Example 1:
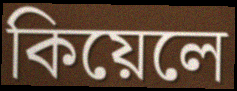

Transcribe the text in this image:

কিয়েলে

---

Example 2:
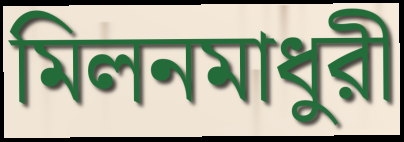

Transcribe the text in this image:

মিলনমাধুরী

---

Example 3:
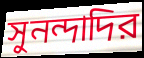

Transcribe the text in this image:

সুনন্দাদির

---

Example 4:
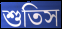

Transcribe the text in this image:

শুতিস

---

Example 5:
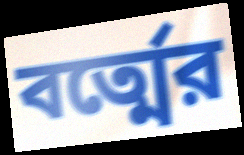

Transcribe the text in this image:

বর্ত্মের